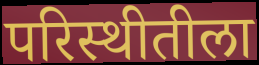
परिस्थीतीला